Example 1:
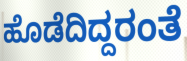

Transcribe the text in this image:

ಹೊಡೆದಿದ್ದರಂತೆ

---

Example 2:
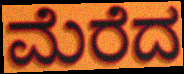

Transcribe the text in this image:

ಮೆರೆದ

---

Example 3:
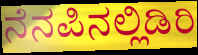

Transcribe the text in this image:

ನೆನಪಿನಲ್ಲಿಡಿರಿ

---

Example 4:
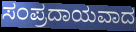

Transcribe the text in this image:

ಸಂಪ್ರದಾಯವಾದ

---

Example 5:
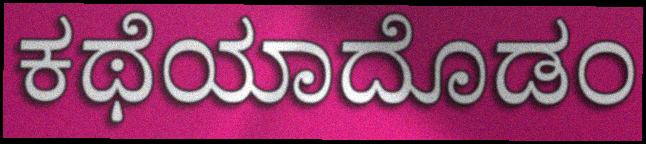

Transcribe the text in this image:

ಕಥೆಯಾದೊಡಂ